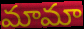
మామా